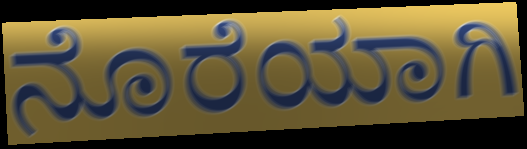
ನೊರೆಯಾಗಿ